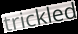
trickled